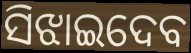
ସିଝାଇଦେବ